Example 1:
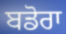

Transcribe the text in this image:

ਬਡੋਰਾ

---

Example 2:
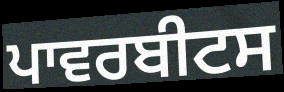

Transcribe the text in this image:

ਪਾਵਰਬੀਟਸ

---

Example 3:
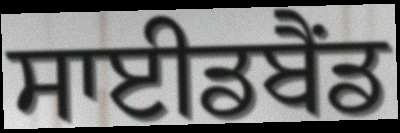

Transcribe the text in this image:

ਸਾਈਡਬੈਂਡ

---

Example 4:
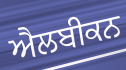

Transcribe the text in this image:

ਐਲਬੀਕਨ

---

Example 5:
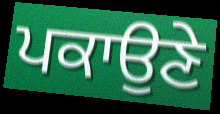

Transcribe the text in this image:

ਪਕਾਉਣੇ